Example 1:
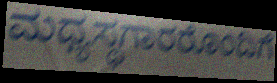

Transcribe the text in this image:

ಮಧ್ಯಸ್ಥಗಾರರೊಂದಿಗೆ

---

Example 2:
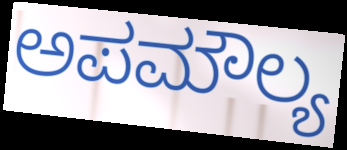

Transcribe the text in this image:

ಅಪಮೌಲ್ಯ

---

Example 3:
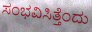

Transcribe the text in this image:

ಸಂಭವಿಸಿತ್ತೆಂದು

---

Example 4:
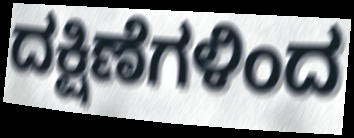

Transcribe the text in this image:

ದಕ್ಷಿಣೆಗಳಿಂದ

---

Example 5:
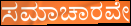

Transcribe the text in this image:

ಸಮಾಚಾರವೇ